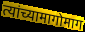
त्यांच्यामागोमाग